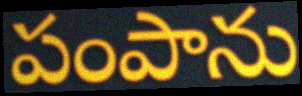
పంపాను